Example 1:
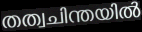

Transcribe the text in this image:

തത്വചിന്തയിൽ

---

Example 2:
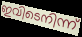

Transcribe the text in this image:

ഇവിടെനിന്ന്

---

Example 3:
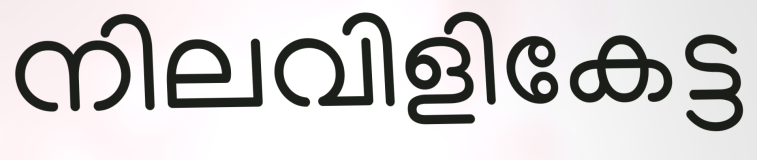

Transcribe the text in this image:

നിലവിളികേട്ട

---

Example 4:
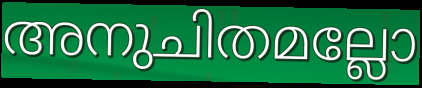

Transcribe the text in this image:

അനുചിതമല്ലോ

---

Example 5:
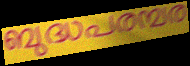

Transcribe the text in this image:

ബുദ്ധപരമ്പര